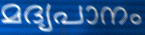
മദ്യപാനം